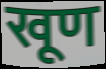
खूण